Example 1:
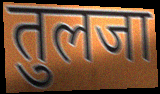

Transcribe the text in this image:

तुलजा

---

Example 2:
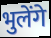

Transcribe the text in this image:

भुलेंगे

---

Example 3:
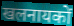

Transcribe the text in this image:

खलनायकों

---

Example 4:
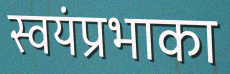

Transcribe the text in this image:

स्वयंप्रभाका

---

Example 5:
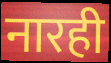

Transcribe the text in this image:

नारही